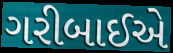
ગરીબાઈએ